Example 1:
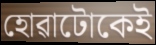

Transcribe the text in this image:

হোৱাটোকেই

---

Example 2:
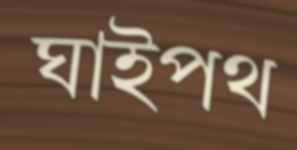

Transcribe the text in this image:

ঘাইপথ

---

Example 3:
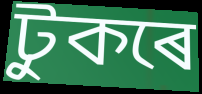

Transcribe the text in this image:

টুকৰে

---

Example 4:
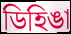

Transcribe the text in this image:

ডিহিঙা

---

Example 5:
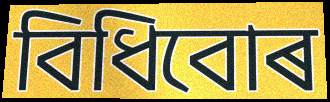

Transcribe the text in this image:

বিধিবোৰ